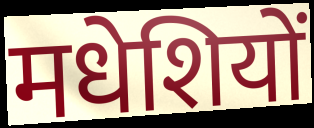
मधेशियों